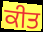
ਕੀਤ